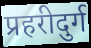
प्रहरीदुर्ग